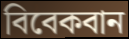
বিবেকবান